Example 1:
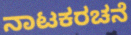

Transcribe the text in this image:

ನಾಟಕರಚನೆ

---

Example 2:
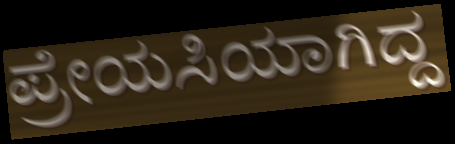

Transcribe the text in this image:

ಪ್ರೇಯಸಿಯಾಗಿದ್ದ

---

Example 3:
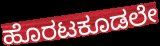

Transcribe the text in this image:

ಹೊರಟಕೂಡಲೇ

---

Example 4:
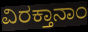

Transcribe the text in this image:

ವಿರಕ್ತಾನಾಂ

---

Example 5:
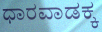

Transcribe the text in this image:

ಧಾರವಾಡಕ್ಕ